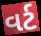
વર્ટ